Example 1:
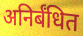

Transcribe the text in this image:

अनिर्बंधित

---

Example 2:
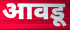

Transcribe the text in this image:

आवडू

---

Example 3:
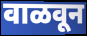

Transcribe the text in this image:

वाळवून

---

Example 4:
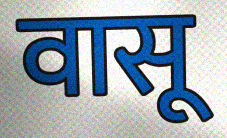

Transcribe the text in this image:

वासू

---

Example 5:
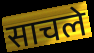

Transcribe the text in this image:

साचले